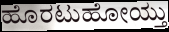
ಹೊರಟುಹೋಯ್ತು